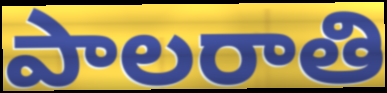
పాలరాతి